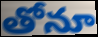
తోనూ